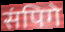
संपिगे